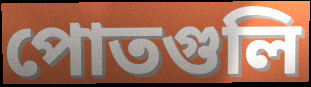
পোতগুলি